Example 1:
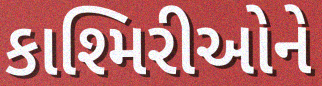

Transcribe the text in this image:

કાશ્મિરીઓને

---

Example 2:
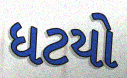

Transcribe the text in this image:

ધટયો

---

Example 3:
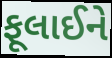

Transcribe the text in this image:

ફૂલાઈને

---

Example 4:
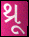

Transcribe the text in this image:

થ્રૂ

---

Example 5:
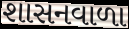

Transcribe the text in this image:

શાસનવાળા